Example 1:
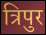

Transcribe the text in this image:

त्रिपुर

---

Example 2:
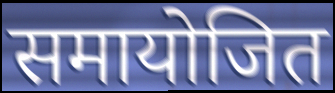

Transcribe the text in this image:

समायोजित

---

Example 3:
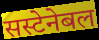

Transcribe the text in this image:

सस्टेनेबल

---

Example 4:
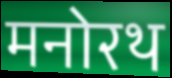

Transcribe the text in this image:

मनोरथ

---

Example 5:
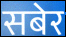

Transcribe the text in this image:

सबेर